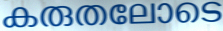
കരുതലോടെ